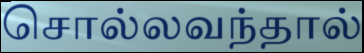
சொல்லவந்தால்